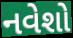
નવેશો